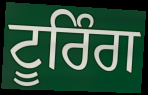
ਟੂਰਿੰਗ